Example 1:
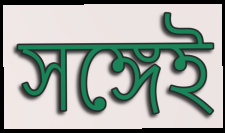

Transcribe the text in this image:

সঙ্গেই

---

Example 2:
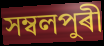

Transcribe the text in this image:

সম্বলপুৰী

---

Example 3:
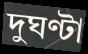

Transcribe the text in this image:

দুঘণ্টা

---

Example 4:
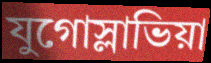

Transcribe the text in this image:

যুগোস্লাভিয়া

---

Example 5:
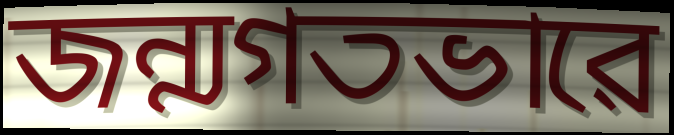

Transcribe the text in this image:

জন্মগতভাৱে